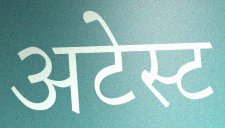
अटेस्ट